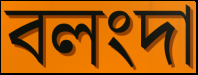
বলংদা